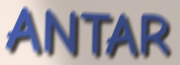
ANTAR